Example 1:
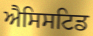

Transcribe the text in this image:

ਐਸਿਸਟਿਡ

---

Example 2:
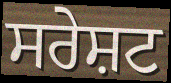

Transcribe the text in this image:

ਸਰੇਸ਼ਟ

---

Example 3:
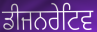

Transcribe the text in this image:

ਡੀਜਨਰੇਟਿਵ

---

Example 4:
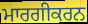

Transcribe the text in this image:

ਮਾਰਗੀਕਰਨ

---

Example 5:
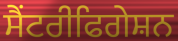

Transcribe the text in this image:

ਸੈਂਟਰੀਫਿਗੇਸ਼ਨ